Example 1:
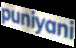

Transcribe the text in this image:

puniyani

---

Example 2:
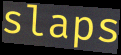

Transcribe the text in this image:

slaps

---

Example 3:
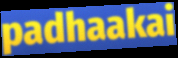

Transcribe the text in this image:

padhaakai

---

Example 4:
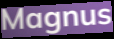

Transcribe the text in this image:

Magnus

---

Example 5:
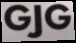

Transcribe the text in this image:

GJG